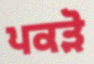
ਪਕੜੋ